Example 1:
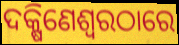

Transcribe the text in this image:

ଦକ୍ଷିଣେଶ୍ୱରଠାରେ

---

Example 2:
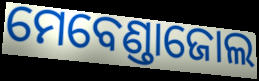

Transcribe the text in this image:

ମେବେଣ୍ଡାଜୋଲ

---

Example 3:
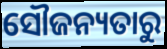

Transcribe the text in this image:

ସୌଜନ୍ୟତାରୁ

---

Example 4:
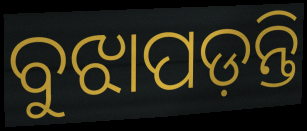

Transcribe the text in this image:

ବୁଝାପଡ଼ନ୍ତି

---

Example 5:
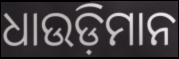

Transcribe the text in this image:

ଧାଉଡ଼ିମାନ